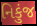
નિકુંજ